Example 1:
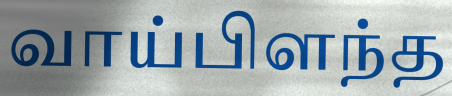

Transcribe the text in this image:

வாய்பிளந்த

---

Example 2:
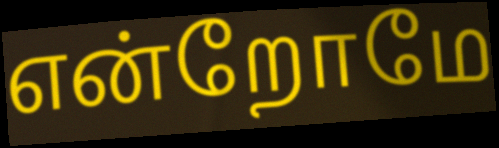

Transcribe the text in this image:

என்றோமே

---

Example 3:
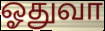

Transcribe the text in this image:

ஓதுவா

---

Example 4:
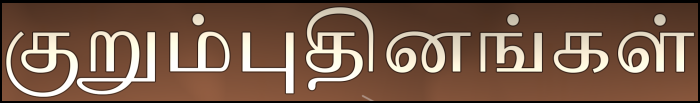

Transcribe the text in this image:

குறும்புதினங்கள்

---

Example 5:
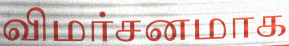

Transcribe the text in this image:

விமர்சனமாக